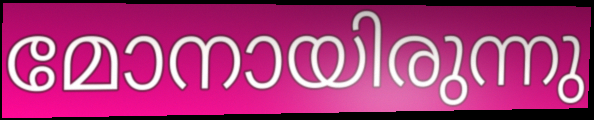
മോനായിരുന്നു